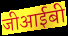
जीआईबी